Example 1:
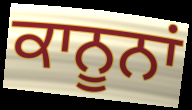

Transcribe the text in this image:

ਕਾਨੂਨਾਂ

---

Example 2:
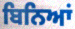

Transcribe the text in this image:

ਬਿਨਿਆਂ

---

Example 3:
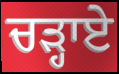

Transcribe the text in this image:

ਚੜ੍ਹਾਏ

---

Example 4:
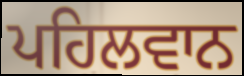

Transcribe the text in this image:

ਪਹਿਲਵਾਨ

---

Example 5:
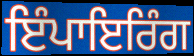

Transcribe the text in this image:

ਇੰਪਾਇਰਿੰਗ